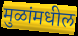
मुळांमधील